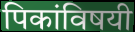
पिकांविषयी